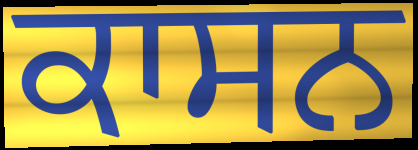
ਕਾਸਨ